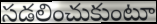
సడలించుకుంటూ